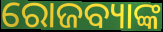
ରୋଜବ୍ୟାଙ୍କ